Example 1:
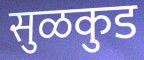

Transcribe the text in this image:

सुळकुड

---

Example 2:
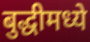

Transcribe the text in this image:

बुद्धीमध्ये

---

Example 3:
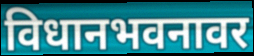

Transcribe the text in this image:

विधानभवनावर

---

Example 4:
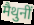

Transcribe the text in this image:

मैथुनीं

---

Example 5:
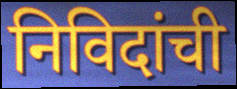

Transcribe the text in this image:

निविदांची